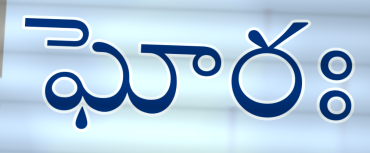
ఘోరః